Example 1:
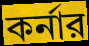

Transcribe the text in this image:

কর্নার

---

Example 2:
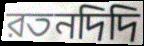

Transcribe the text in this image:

রতনদিদি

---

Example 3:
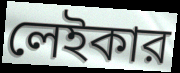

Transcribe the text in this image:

লেইকার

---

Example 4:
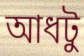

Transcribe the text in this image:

আধটু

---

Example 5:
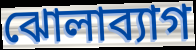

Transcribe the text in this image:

ঝোলাব্যাগ